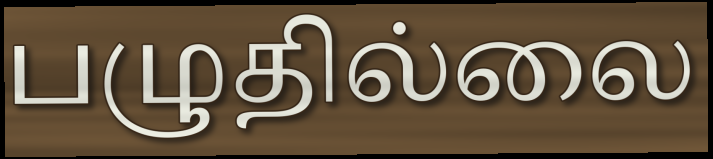
பழுதில்லை